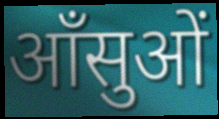
आँसुओं